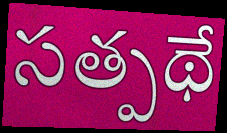
సత్పథే